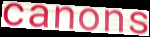
canons